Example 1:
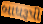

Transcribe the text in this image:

બાધરૂપી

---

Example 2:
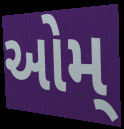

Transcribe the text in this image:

ઓમ્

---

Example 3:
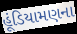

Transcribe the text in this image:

હૂંડિયામણના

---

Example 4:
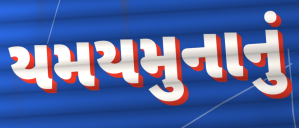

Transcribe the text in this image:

યમયમુનાનું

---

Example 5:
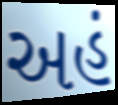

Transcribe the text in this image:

અહં